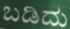
ಬಡಿದು